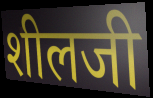
शीलजी